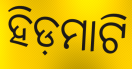
ହିଡ଼ମାଟି